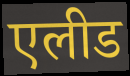
एलीड